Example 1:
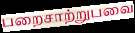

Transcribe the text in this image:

பறைசாற்றுபவை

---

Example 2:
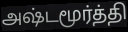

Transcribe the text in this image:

அஷ்டமூர்த்தி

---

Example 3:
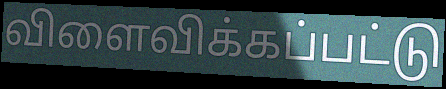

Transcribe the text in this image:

விளைவிக்கப்பட்டு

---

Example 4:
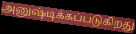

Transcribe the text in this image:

அனுஷ்டிக்கப்படுகிறது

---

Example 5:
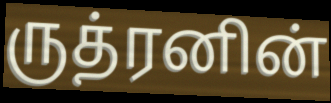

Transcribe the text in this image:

ருத்ரனின்